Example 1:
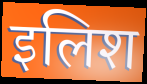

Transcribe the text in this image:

इलिश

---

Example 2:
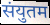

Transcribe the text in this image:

संयुतम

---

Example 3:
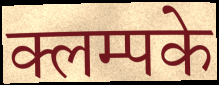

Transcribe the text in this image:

क्लम्पके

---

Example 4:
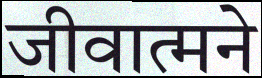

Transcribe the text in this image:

जीवात्मने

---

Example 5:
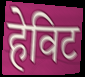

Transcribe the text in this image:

हेविट